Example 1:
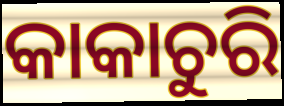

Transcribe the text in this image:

କାକାଚୁରି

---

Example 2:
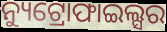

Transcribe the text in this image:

ନ୍ୟୁଟ୍ରୋଫାଇଲ୍ସର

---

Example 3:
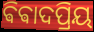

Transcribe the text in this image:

ଵିଵାଦପ୍ରିୟ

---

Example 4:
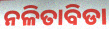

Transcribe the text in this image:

ନଳିତାବିଡା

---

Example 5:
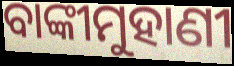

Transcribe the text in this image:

ବାଙ୍କୀମୁହାଣୀ